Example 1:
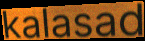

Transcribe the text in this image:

kalasad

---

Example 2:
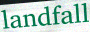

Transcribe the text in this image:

landfall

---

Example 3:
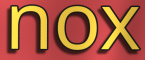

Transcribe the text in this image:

nox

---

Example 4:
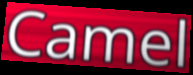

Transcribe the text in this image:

Camel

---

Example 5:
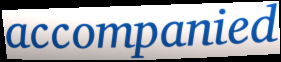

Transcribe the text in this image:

accompanied